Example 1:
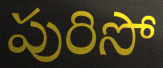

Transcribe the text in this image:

పురిసో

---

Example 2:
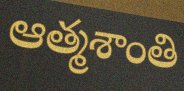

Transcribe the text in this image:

ఆత్మశాంతి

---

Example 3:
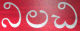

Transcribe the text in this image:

నిలచి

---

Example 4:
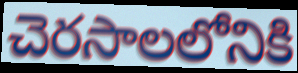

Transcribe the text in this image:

చెరసాలలోనికి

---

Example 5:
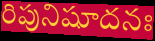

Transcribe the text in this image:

రిపునిషూదనః